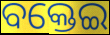
ବକ୍ତେଇ